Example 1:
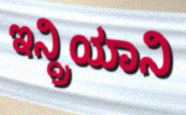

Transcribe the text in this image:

ಇನ್ದ್ರಿಯಾನಿ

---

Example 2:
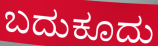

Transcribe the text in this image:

ಬದುಕೂದು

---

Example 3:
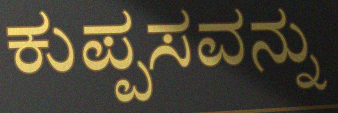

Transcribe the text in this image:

ಕುಪ್ಪಸವನ್ನು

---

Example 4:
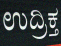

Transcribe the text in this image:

ಉದ್ರಿಕ್ತ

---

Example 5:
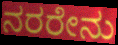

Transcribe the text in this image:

ನರರೇನು